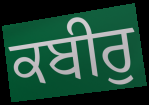
ਕਬੀਰੁ